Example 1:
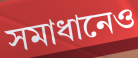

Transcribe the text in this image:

সমাধানেও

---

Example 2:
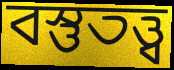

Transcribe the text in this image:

বস্তুতত্ত্ব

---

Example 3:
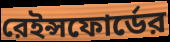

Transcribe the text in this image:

রেইন্সফোর্ডের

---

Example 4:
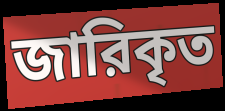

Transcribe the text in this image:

জারিকৃত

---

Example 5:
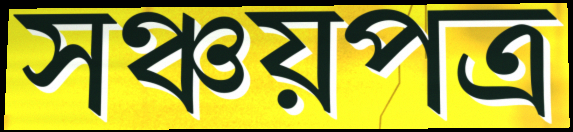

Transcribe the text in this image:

সঞ্চয়পত্র